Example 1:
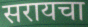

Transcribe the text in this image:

सरायचा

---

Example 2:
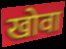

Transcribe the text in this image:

खोवा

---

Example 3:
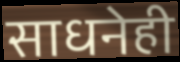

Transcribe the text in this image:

साधनेही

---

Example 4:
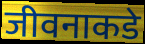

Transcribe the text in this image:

जीवनाकडे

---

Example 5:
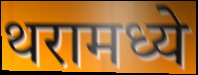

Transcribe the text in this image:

थरामध्ये